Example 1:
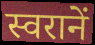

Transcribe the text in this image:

स्वरानें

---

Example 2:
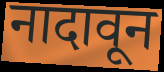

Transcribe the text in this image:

नादावून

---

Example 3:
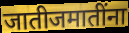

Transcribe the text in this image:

जातीजमातींना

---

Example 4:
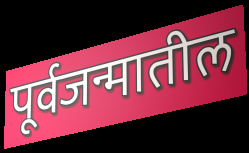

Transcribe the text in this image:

पूर्वजन्मातील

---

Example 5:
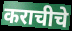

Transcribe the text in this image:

कराचीचे